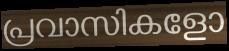
പ്രവാസികളോ